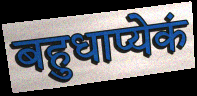
बहुधाप्येकं